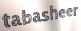
tabasheer